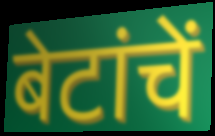
बेटांचें